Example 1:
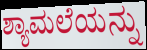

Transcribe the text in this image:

ಶ್ಯಾಮಲೆಯನ್ನು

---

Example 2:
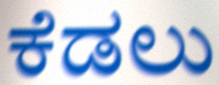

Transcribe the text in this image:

ಕೆಡಲು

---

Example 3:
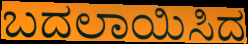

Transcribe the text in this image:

ಬದಲಾಯಿಸಿದ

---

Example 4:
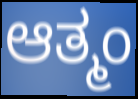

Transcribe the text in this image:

ಆತ್ಮಂ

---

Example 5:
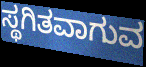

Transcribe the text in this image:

ಸ್ಥಗಿತವಾಗುವ